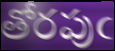
తోరపుఁ